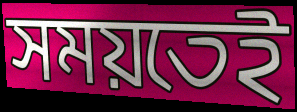
সময়তেই